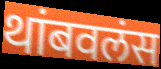
थांबवलंस